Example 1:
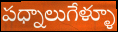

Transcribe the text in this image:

పధ్నాలుగేళ్ళూ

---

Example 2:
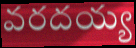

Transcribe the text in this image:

వరదయ్య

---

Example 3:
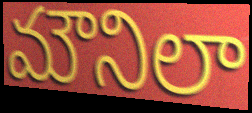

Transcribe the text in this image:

మౌనిలా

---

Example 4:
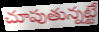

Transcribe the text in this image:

చూపుతున్నట్టే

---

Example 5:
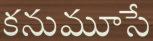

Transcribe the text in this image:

కనుమూసే